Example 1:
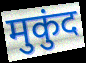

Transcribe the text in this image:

मुकुंद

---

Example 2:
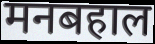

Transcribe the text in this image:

मनबहाल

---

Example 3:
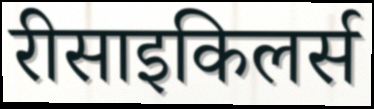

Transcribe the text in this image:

रीसाइकिलर्स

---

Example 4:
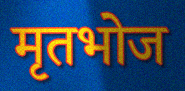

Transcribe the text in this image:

मृतभोज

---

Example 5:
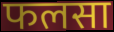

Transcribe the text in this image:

फलसा